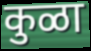
कुळा